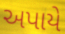
અપાયે